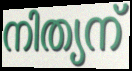
നിത്യന്